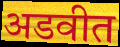
अडवीत